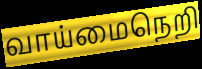
வாய்மைநெறி